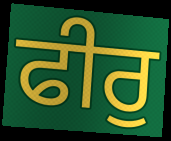
ਫੀਰੁ